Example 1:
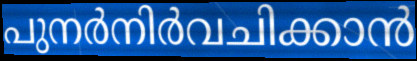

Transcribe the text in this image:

പുനർനിർവചിക്കാൻ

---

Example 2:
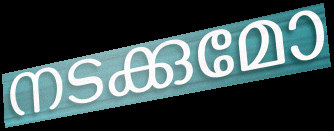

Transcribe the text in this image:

നടക്കുമോ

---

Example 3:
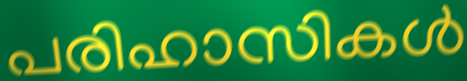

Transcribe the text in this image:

പരിഹാസികൾ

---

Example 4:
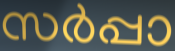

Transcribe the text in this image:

സർപ്പാ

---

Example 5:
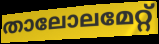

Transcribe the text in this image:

താലോലമേറ്റ്